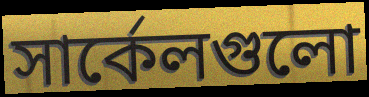
সার্কেলগুলো